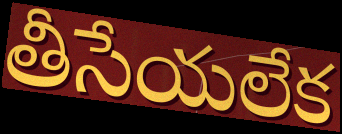
తీసేయలేక